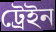
ট্ৰেইন